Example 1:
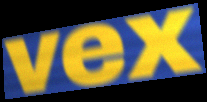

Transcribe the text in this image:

vex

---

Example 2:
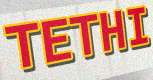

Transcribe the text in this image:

TETHI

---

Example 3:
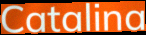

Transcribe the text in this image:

Catalina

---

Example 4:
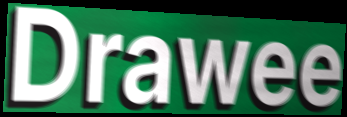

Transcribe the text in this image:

Drawee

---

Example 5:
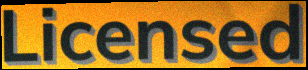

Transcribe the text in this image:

Licensed